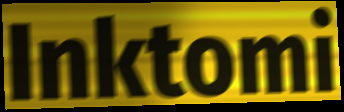
Inktomi